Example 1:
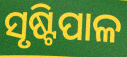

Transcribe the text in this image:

ସୃଷ୍ଟିପାଳ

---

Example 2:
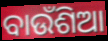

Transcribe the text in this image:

ବାଉଁଶିଆ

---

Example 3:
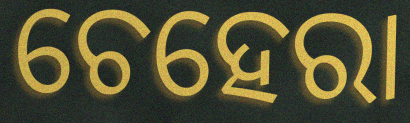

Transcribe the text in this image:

ଚେହେରା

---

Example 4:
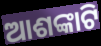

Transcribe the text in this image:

ଆଶଙ୍କାଟି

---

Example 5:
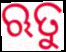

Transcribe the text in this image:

ଋତୁ